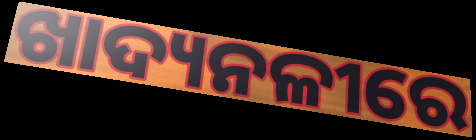
ଖାଦ୍ୟନଳୀରେ